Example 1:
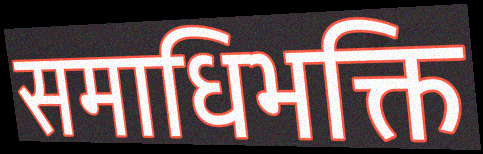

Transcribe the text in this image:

समाधिभक्ति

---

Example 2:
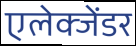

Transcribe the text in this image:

एलेक्‍जेंडर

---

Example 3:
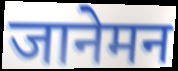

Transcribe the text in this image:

जानेमन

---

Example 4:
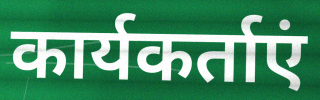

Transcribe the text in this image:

कार्यकर्ताएं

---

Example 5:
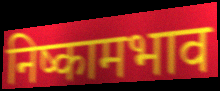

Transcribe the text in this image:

निष्कामभाव